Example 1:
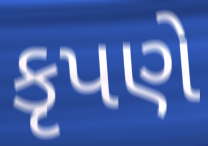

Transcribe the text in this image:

કૃપણે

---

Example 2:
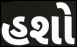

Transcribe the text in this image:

હશો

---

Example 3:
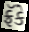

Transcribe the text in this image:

ફ્રૅંકે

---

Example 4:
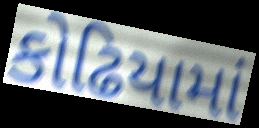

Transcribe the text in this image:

કોઢિયામાં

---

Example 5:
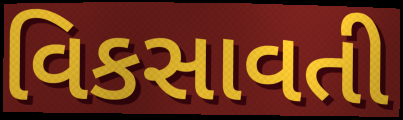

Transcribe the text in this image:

વિકસાવતી